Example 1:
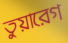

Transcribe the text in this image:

তুয়ারেগ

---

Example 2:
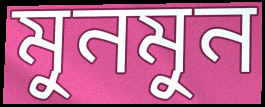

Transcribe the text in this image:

মুনমুন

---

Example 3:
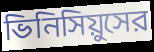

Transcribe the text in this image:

ভিনিসিয়ুসের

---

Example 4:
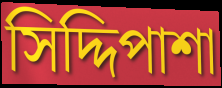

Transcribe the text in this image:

সিদ্দিপাশা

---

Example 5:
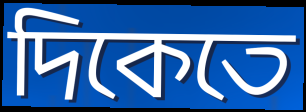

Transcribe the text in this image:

দিকেতে